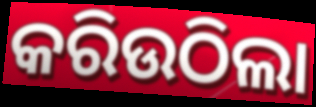
କରିଉଠିଲା